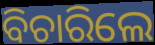
ବିଚାରିଲେ